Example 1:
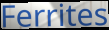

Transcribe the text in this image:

Ferrites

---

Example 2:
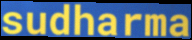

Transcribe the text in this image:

sudharma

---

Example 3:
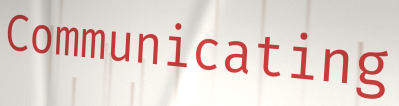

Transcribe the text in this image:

Communicating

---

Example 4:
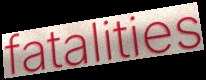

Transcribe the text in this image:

fatalities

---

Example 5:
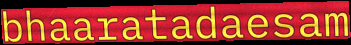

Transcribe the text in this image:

bhaaratadaesam